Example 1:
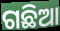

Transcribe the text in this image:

ଗଛିଆ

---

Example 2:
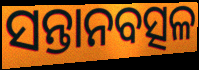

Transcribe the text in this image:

ସନ୍ତାନବତ୍ସଳ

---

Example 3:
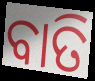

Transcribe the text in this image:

ବାତି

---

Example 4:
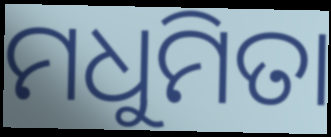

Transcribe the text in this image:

ମଧୁମିତା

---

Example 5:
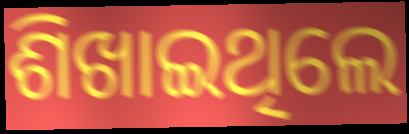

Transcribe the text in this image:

ଶିଖାଇଥିଲେ